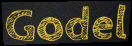
Godel